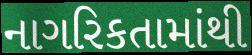
નાગરિકતામાંથી